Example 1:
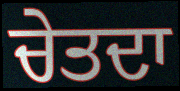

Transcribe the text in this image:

ਚੇਤਦਾ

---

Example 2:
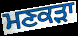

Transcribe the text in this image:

ਮਣਕੜਾ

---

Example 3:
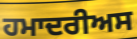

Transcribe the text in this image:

ਹਮਾਦਰੀਅਸ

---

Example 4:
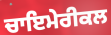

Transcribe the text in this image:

ਚਾਇਮੇਰੀਕਲ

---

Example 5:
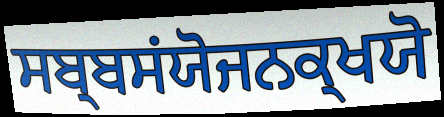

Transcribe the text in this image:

ਸਬ੍ਬਸਂਯੋਜਨਕ੍ਖਯੋ